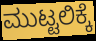
ಮುಟ್ಟಲಿಕ್ಕೆ